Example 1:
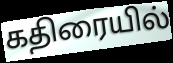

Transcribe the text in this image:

கதிரையில்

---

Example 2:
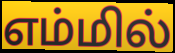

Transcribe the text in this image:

எம்மில்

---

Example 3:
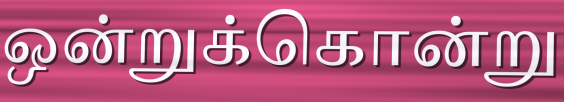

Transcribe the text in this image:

ஒன்றுக்கொன்று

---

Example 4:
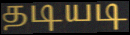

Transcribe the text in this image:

தடியடி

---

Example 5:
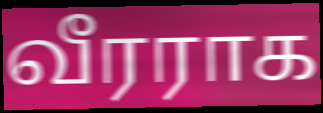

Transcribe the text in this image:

வீரராக